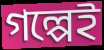
গল্পেই